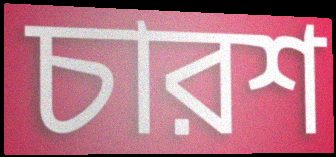
চারশ